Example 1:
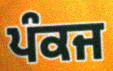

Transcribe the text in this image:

ਪੰਕਜ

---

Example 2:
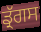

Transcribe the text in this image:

ਡ੍ਰੱਗਸ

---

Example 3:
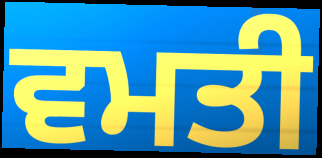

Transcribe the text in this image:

ਵਮਤੀ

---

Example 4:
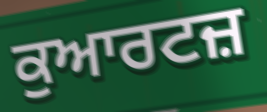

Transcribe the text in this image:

ਕੁਆਰਟਜ਼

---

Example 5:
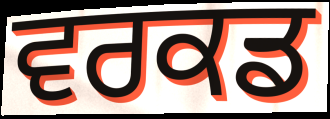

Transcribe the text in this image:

ਵਰਕਡ